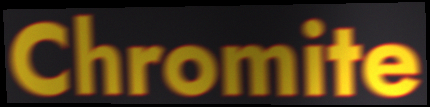
Chromite